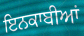
ਇਨਕਾਬੀਆਂ